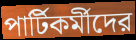
পার্টিকর্মীদের